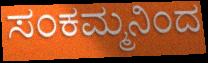
ಸಂಕಮ್ಮನಿಂದ